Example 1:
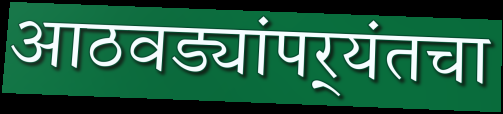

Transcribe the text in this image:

आठवड्यांपर्यंतचा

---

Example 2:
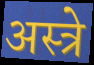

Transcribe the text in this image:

अस्त्रे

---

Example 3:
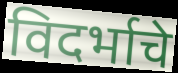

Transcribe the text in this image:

विदर्भाचे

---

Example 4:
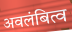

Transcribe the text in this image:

अवलंबित्व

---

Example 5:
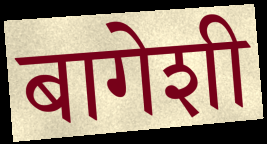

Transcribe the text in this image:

बागेशी